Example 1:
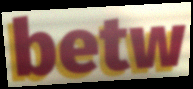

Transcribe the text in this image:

betw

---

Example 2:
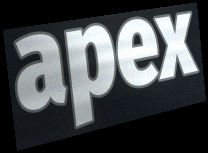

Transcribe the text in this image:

apex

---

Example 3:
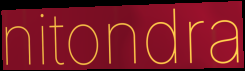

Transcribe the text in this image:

nitondra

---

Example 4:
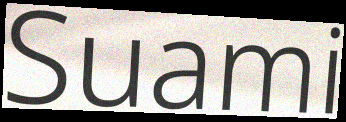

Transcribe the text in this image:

Suami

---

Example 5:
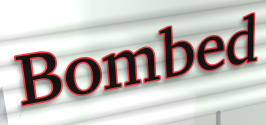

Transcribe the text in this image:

Bombed